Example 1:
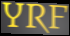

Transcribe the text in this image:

YRF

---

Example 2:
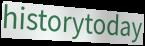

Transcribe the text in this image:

historytoday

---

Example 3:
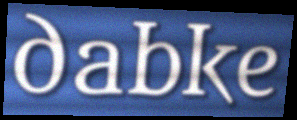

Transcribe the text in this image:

dabke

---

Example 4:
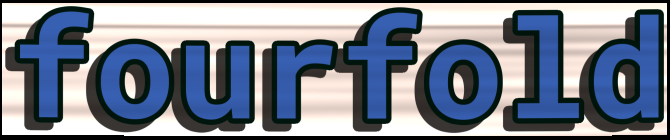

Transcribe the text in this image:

fourfold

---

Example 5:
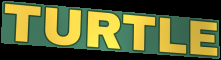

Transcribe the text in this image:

TURTLE